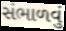
સંભાળવું